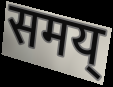
समय्